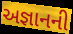
અજ્ઞાનની